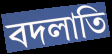
বদলাতি